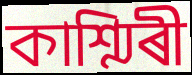
কাশ্মিৰী